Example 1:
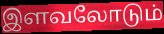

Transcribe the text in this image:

இளவலோடும்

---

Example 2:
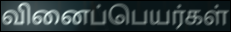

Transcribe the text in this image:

வினைப்பெயர்கள்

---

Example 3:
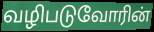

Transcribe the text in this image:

வழிபடுவோரின்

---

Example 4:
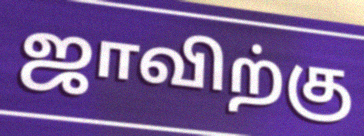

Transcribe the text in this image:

ஜாவிற்கு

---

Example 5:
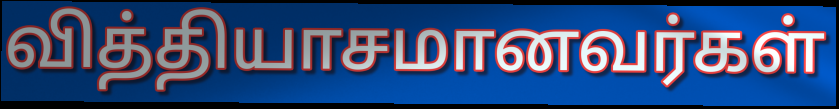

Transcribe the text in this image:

வித்தியாசமானவர்கள்